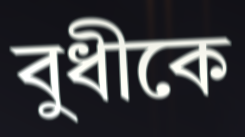
বুধীকে